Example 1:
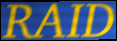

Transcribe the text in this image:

RAID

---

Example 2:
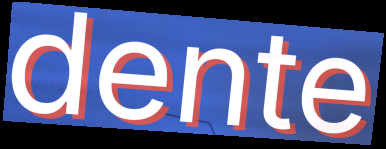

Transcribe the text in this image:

dente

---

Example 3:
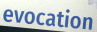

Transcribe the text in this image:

evocation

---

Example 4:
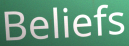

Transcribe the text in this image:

Beliefs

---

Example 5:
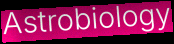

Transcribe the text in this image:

Astrobiology